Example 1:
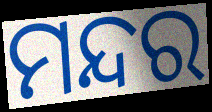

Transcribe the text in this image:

ମନ୍ଦର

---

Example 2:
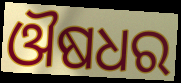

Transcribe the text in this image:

ଔଷଧର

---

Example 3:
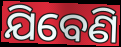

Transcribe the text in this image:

ଯିବେଣି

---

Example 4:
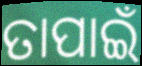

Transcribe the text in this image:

ତାପାଇଁ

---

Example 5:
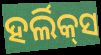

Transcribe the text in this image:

ହର୍ଲିକ୍‌ସ